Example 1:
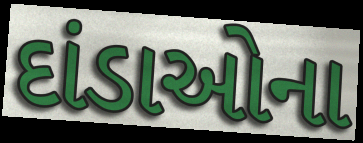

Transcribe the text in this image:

દાંડાઓના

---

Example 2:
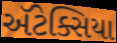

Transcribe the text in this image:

ઍટેક્સિયા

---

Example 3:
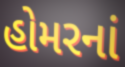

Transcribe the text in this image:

હોમરનાં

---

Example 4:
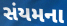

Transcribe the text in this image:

સંયમના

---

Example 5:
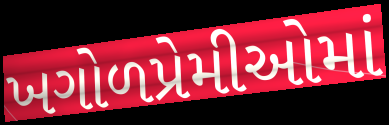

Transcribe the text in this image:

ખગોળપ્રેમીઓમાં